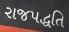
રાજપદ્ધતિ